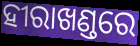
ହୀରାଖଣ୍ଡରେ